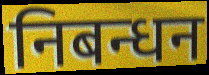
निबन्धन